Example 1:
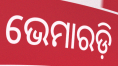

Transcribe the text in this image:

ଭେମାରଡ଼ି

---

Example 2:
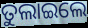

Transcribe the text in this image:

ତୁଲାଇଲେ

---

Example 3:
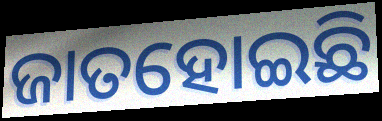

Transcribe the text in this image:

ଜାତହୋଇଛି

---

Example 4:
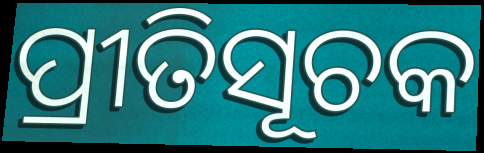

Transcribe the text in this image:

ପ୍ରୀତିସୂଚକ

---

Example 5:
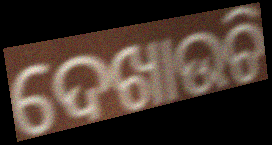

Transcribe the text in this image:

ଦେଖାଉଚି